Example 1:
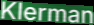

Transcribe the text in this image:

Klerman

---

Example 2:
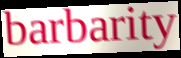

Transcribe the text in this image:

barbarity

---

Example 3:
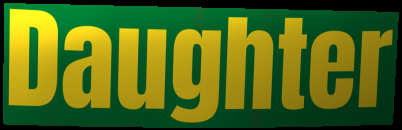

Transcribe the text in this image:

Daughter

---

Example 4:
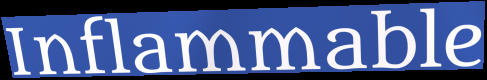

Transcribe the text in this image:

Inflammable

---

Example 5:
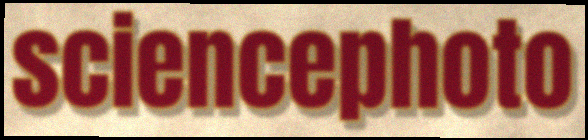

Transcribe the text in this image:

sciencephoto